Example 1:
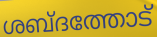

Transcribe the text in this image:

ശബ്ദത്തോട്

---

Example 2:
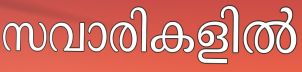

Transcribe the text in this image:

സവാരികളിൽ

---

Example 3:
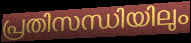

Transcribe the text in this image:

പ്രതിസന്ധിയിലും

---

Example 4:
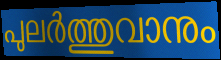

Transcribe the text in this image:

പുലർത്തുവാനും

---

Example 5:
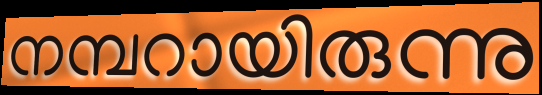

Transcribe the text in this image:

നമ്പറായിരുന്നു